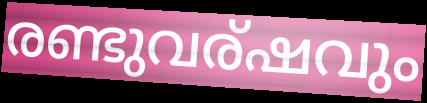
രണ്ടുവര്ഷവും